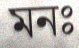
মনঃ